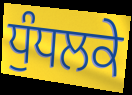
ਧੁੰਧਲਕੇ